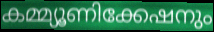
കമ്മ്യൂണിക്കേഷനും